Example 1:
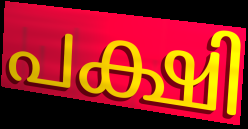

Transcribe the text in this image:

പക്ഷി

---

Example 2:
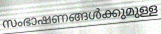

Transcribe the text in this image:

സംഭാഷണങ്ങൾക്കുമുള്ള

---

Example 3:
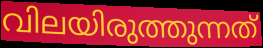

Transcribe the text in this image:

വിലയിരുത്തുന്നത്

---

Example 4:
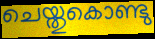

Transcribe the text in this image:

ചെയ്തുകൊണ്ടു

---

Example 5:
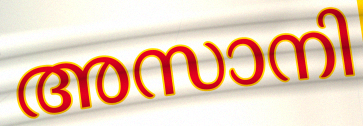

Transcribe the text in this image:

അസാനി